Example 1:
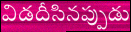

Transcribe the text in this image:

విడదీసినప్పుడు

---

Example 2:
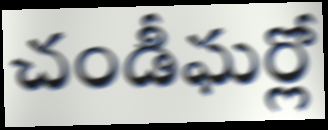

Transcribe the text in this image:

చండీఘర్లో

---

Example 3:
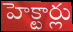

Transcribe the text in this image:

హెక్టార్లు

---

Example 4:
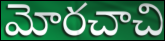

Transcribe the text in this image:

మోరచాచి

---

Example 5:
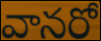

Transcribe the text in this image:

వానరో